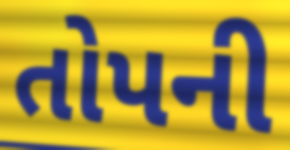
તોપની